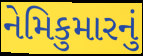
નેમિકુમારનું